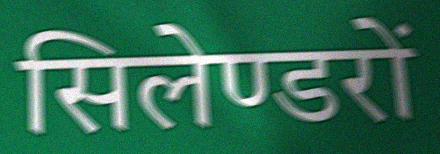
सिलेण्डरों